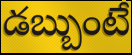
డబ్బుంటే